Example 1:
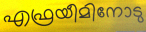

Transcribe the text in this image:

എഫ്രയീമിനോടു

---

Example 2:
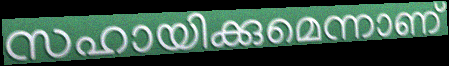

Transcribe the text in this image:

സഹായിക്കുമെന്നാണ്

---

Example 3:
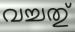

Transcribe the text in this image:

വച്ചതു്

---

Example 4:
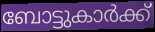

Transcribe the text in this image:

ബോട്ടുകാർക്ക്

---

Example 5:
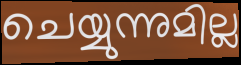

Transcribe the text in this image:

ചെയ്യുന്നുമില്ല